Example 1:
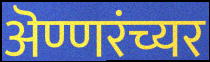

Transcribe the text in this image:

ऄण्णरंच्यर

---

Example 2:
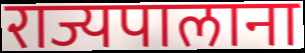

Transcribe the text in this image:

राज्यपालाना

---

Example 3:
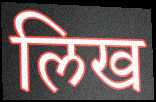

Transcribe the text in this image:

लिख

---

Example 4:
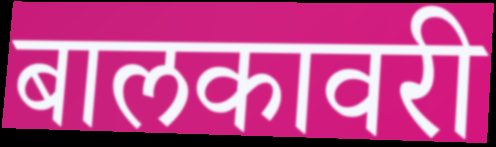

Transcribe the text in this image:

बालकावरी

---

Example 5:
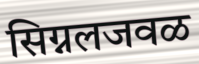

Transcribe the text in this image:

सिग्नलजवळ